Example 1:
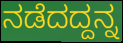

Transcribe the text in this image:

ನಡೆದದ್ದನ್ನ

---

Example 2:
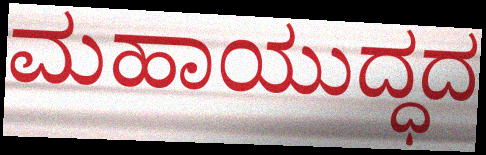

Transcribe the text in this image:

ಮಹಾಯುದ್ಧದ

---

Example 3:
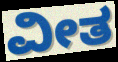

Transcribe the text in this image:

ವೀತ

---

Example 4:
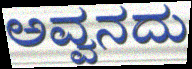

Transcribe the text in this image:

ಅವ್ವನದು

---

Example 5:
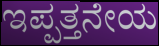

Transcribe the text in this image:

ಇಪ್ಪತ್ತನೇಯ